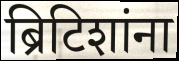
ब्रिटिशांना